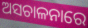
ଅସଚାଳନାରେ